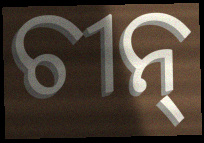
ଚୀନ୍